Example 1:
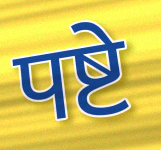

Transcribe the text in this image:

पष्टे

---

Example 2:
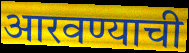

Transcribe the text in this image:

आरवण्याची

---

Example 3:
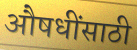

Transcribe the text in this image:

औषधींसाठी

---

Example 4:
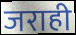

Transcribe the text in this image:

जराही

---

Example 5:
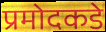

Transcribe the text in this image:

प्रमोदकडे